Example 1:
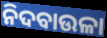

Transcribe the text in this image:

ନିଦବାଉଳା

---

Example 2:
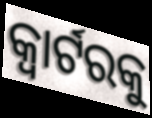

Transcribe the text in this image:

କ୍ୱାର୍ଟରକୁ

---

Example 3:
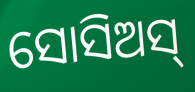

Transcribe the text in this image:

ସୋସିଅସ୍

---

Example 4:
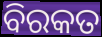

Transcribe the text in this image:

ବିରକତ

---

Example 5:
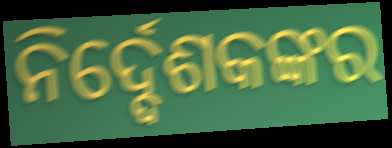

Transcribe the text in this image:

ନିର୍ଦ୍ଦେଶକଙ୍କର